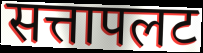
सत्तापलट